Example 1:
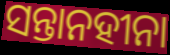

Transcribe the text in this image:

ସନ୍ତାନହୀନା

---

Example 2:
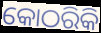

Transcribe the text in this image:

କୋଠରିକି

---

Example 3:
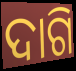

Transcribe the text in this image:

ଦାଗି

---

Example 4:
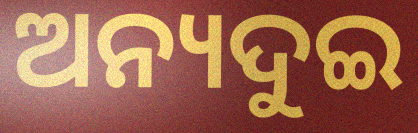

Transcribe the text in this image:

ଅନ୍ୟଦୁଇ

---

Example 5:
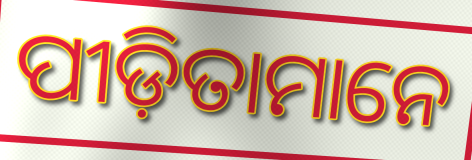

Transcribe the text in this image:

ପୀଡ଼ିତାମାନେ